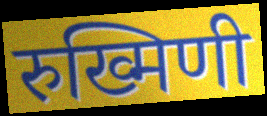
रुख्मिणी